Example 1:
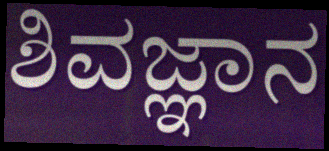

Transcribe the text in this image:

ಶಿವಜ್ಞಾನ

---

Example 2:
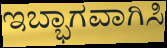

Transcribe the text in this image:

ಇಬ್ಭಾಗವಾಗಿಸಿ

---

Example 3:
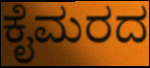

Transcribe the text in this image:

ಕೈಮರದ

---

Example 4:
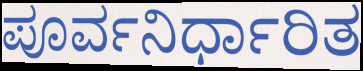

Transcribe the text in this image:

ಪೂರ್ವನಿರ್ಧಾರಿತ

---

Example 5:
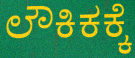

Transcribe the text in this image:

ಲೌಕಿಕಕ್ಕೆ